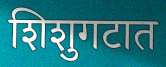
शिशुगटात